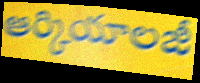
ఆర్కియాలజీ